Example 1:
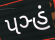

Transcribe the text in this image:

પઞ્હં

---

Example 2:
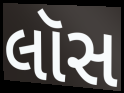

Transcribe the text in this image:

લૉસ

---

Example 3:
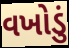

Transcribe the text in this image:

વખોડું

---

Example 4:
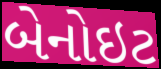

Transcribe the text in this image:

બેનોઇટ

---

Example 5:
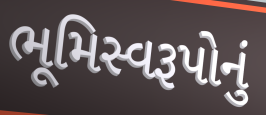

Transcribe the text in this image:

ભૂમિસ્વરૂપોનું